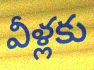
వీళ్లకు